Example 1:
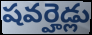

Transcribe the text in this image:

షవర్హెడ్లు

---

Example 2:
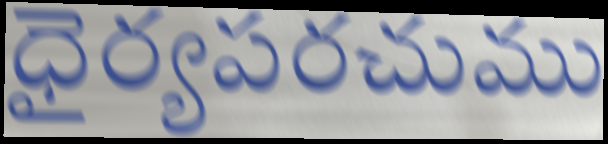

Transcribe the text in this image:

ధైర్యపరచుము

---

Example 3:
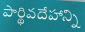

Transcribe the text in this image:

పార్థివదేహాన్ని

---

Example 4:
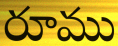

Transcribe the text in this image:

రూము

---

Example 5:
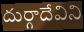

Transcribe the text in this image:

దుర్గాదేవిని